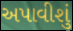
અપાવીશું